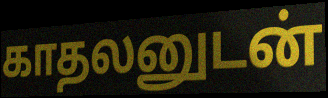
காதலனுடன்